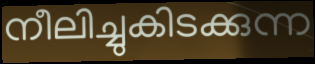
നീലിച്ചുകിടക്കുന്ന